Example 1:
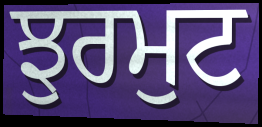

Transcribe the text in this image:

ਝੁਰਮੁਟ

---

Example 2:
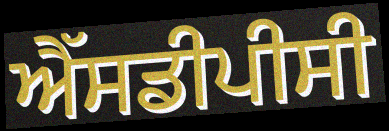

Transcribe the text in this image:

ਐੱਸਡੀਪੀਸੀ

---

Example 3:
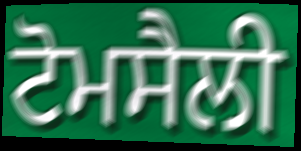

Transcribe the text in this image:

ਟੋਮਸੈਲੀ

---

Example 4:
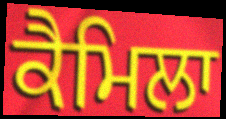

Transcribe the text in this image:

ਕੈਮਿਲਾ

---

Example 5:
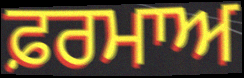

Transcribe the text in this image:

ਫ਼ਰਮਾਅ